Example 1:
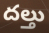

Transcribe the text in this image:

దల్తు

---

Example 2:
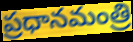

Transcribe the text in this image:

ప్రధానమంత్రి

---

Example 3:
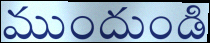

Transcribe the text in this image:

ముందుండి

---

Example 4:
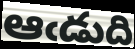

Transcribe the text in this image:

ఆఁడుది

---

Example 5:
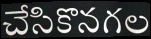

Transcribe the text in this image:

చేసికొనగల